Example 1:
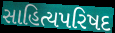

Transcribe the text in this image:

સાહિત્યપરિષદ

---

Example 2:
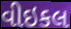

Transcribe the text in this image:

વીઇકલ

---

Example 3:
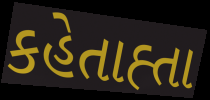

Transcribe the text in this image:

કહેતાહ્તા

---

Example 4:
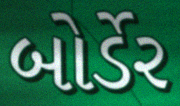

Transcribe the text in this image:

બોર્ડેર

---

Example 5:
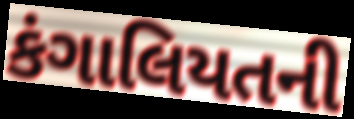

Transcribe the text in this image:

કંગાલિયતની